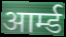
आर्म्ड